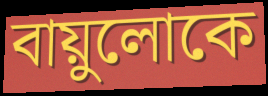
বায়ুলোকে